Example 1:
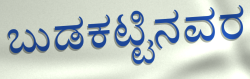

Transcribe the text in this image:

ಬುಡಕಟ್ಟಿನವರ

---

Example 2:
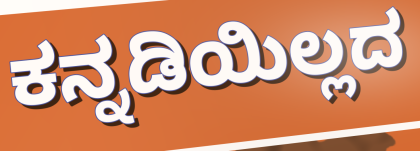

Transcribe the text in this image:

ಕನ್ನಡಿಯಿಲ್ಲದ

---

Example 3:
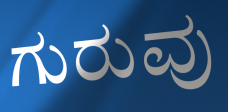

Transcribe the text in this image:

ಗುರುವು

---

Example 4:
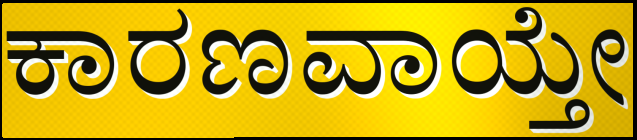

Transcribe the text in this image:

ಕಾರಣವಾಯ್ತೇ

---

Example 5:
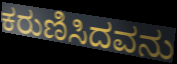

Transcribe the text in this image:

ಕರುಣಿಸಿದವನು